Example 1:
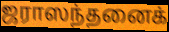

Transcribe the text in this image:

ஜராஸந்தனைக்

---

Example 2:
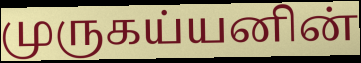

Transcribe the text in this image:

முருகய்யனின்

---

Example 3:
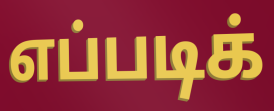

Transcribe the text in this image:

எப்படிக்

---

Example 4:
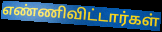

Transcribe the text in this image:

எண்ணிவிட்டார்கள்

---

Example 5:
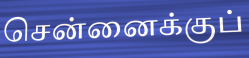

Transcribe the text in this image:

சென்னைக்குப்